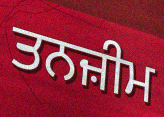
ਤਨਜ਼ੀਮ